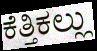
ಕೆತ್ತಿಕಲ್ಲು